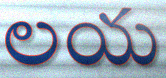
లయ